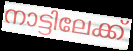
നാട്ടിലേക്ക്